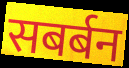
सबर्बन